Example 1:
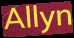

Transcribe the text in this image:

Allyn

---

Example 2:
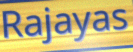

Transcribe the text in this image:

Rajayas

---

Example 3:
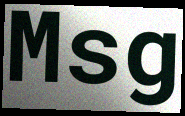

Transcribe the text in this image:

Msg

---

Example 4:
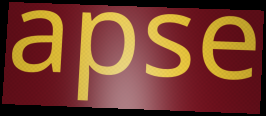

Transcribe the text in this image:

apse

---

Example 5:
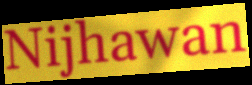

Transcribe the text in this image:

Nijhawan